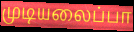
முடியலைப்பா